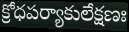
క్రోధపర్యాకులేక్షణః